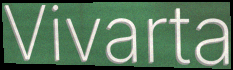
Vivarta